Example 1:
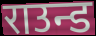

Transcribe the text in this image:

राउन्ड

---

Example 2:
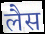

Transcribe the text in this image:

लैस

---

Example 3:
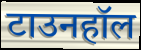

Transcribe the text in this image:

टाउनहॉल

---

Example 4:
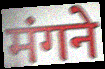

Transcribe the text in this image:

मंगने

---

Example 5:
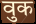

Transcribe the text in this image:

वुक